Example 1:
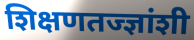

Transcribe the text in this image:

शिक्षणतज्ज्ञांशी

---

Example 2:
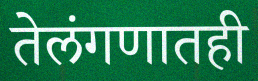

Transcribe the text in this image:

तेलंगणातही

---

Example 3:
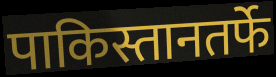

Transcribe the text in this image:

पाकिस्तानतर्फे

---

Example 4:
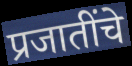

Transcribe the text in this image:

प्रजातींचे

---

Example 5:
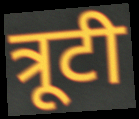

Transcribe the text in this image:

त्रूटी